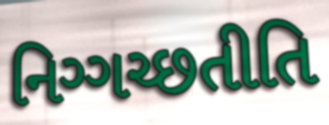
નિગ્ગચ્છતીતિ